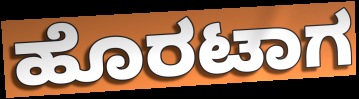
ಹೊರಟಾಗ